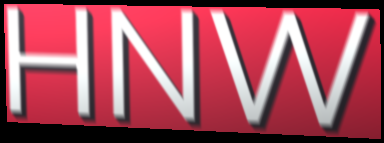
HNW